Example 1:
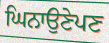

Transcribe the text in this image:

ਘਿਨਾਉਣੇਪਣ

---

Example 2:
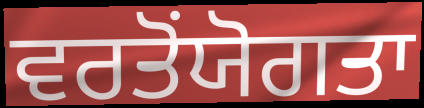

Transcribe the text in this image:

ਵਰਤੋਂਯੋਗਤਾ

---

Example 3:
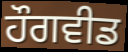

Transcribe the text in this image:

ਹੌਗਵੀਡ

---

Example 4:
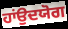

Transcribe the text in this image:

ਹਾਂਉਦਯੋਗ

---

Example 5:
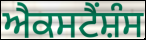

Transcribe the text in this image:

ਐਕਸਟੈਂਸ਼ੰਸ